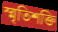
স্মৃতিশক্তি